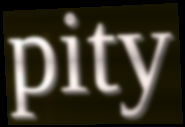
pity